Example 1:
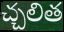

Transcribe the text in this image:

చ్చలిత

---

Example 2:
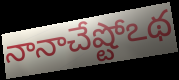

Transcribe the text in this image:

నానాచేష్టోఽథ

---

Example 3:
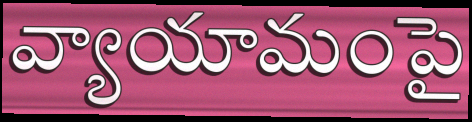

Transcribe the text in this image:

వ్యాయామంపై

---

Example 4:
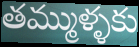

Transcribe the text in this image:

తమ్ముళ్ళకు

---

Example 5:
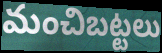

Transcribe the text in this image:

మంచిబట్టలు